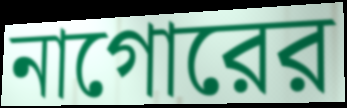
নাগোরের